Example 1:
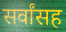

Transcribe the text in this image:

सर्वांसह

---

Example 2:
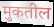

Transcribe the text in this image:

मुकतील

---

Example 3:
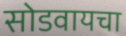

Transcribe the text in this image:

सोडवायचा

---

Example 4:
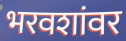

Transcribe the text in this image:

भरवशांवर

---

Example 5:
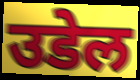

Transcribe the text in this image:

उडेल